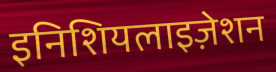
इनिशियलाइज़ेशन